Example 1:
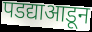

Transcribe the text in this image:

पडद्याआडून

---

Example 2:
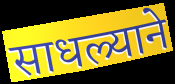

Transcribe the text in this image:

साधल्याने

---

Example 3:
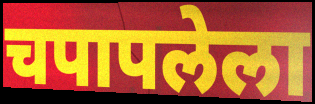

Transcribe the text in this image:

चपापलेला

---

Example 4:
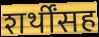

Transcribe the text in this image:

शर्थींसह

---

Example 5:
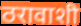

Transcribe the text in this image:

ठरावाशी